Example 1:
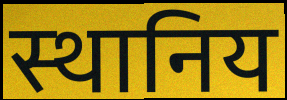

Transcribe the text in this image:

स्थानिय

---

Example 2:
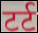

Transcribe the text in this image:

टर्ट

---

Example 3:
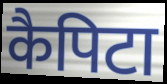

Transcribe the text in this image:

कैपिटा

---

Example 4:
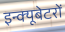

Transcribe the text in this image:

इन्क्यूबेटरों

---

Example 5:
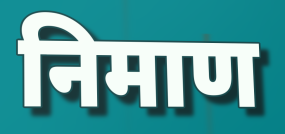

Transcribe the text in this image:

निमाण